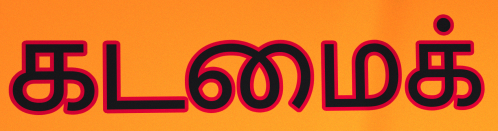
கடமைக்